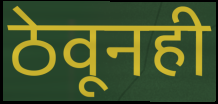
ठेवूनही